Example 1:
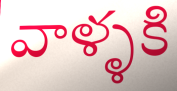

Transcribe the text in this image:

వాళ్ళకి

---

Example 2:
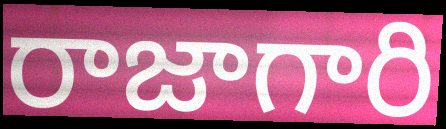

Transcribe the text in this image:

రాజాగారి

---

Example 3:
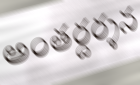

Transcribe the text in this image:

అంతర్దర్శన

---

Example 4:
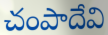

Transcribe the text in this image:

చంపాదేవి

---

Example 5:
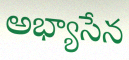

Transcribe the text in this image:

అభ్యాసేన